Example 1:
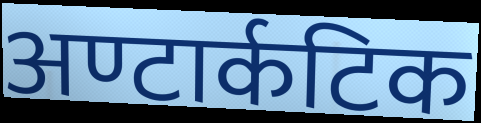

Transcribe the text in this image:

अण्टार्कटिक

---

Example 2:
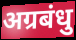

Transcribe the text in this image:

अग्रबंधु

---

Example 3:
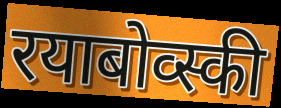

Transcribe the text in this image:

रयाबोव्स्की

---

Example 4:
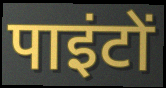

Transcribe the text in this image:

पाइंटों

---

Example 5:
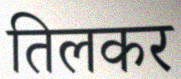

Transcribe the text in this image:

तिलकर